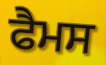
ਫੈਮਸ